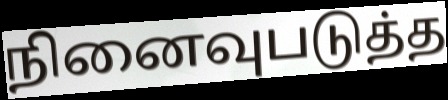
நினைவுபடுத்த